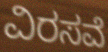
ವಿರಸವೆ